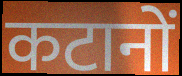
कटानों